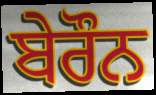
ਬੇਰੌਨ